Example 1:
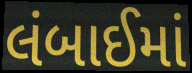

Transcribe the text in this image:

લંબાઈમાં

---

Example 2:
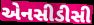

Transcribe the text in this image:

એનસીડીસી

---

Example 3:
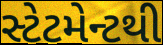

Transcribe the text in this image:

સ્ટેટમેન્ટથી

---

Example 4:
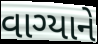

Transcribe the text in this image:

વાગ્યાને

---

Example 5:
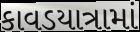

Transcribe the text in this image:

કાવડયાત્રામાં